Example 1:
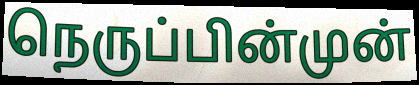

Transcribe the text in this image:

நெருப்பின்முன்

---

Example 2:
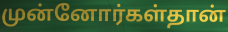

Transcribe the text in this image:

முன்னோர்கள்தான்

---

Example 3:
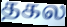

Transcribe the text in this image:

தகல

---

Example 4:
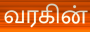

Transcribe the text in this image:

வரகின்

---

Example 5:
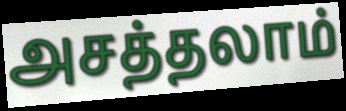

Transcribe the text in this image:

அசத்தலாம்